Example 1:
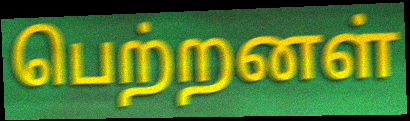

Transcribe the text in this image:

பெற்றனள்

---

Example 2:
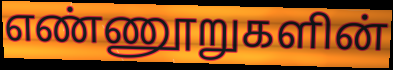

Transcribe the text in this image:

எண்ணூறுகளின்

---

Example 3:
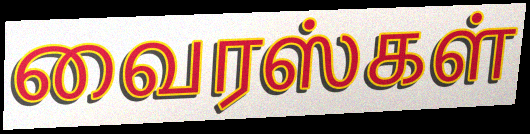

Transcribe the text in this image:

வைரஸ்கள்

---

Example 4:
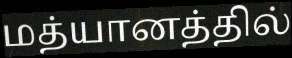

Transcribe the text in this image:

மத்யானத்தில்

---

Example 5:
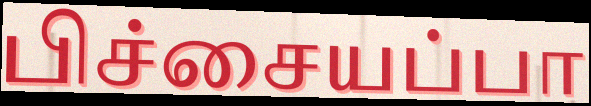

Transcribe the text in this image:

பிச்சையப்பா